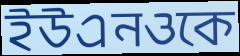
ইউএনওকে